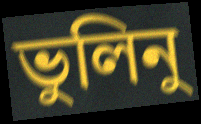
ভুলিনু